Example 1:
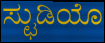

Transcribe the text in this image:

ಸ್ಟುಡಿಯೊ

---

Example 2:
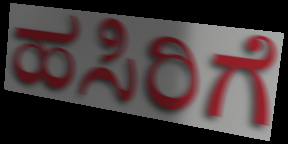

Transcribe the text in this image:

ಹಸಿರಿಗೆ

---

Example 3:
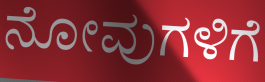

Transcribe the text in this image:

ನೋವುಗಳಿಗೆ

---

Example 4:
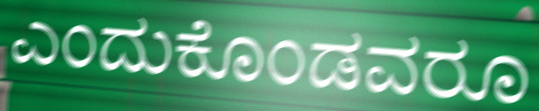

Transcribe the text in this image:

ಎಂದುಕೊಂಡವರೂ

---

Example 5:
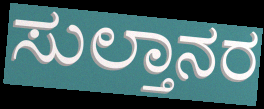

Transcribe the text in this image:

ಸುಲ್ತಾನರ